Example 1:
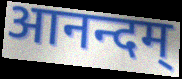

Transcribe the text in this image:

आनन्दम्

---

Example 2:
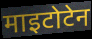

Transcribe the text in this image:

माइटोटेन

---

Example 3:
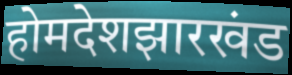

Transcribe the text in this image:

होमदेशझारखंड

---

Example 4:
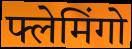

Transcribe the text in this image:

फ्लेमिंगो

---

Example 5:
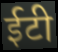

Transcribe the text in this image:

ईटी